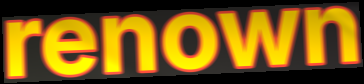
renown